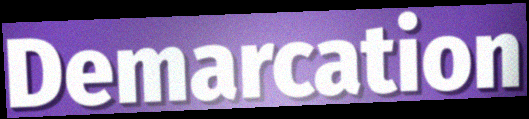
Demarcation